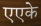
एएके